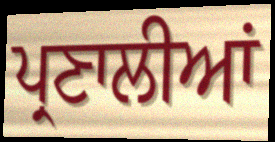
ਪ੍ਰਣਾਲੀਆਂ